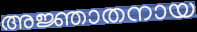
അജ്ഞാതനായ